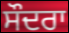
ਸੌਦਰਾ